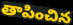
తాపించిన